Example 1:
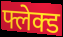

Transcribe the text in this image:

फ्लेक्ड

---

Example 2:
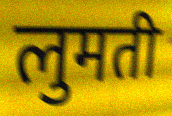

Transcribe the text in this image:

लुमती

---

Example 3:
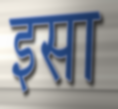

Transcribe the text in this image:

इसा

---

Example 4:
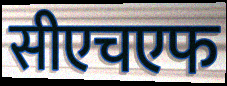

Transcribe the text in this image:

सीएचएफ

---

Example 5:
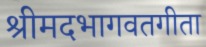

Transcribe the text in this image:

श्रीमदभागवतगीता